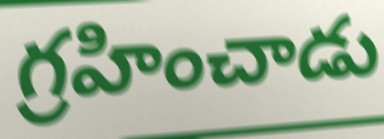
గ్రహించాడు